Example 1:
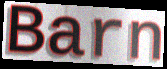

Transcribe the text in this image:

Barn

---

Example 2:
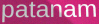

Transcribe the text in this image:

patanam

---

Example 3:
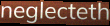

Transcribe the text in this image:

neglecteth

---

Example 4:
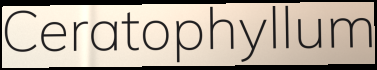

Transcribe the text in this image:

Ceratophyllum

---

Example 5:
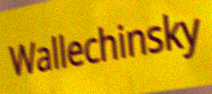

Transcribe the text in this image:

Wallechinsky